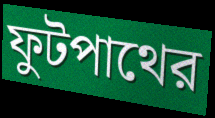
ফুটপাথের